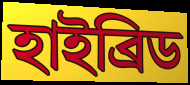
হাইব্রিড